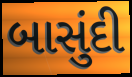
બાસુંદી